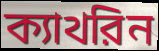
ক্যাথরিন